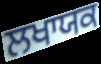
ਲਖਾਯਕ